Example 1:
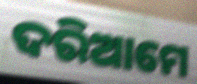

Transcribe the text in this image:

ଦରିଆମେ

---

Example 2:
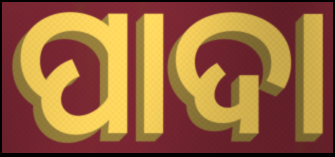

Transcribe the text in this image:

ପାଦା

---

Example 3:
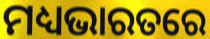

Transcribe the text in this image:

ମଧ୍ୟଭାରତରେ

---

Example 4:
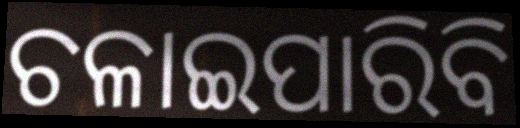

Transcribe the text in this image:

ଚଳାଇପାରିବି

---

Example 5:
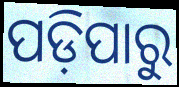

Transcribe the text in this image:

ପଡ଼ିପାରୁ